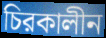
চিরকালীন